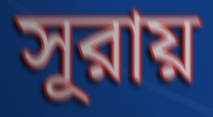
সূরায়